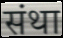
संथा